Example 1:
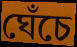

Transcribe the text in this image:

ঘেঁচে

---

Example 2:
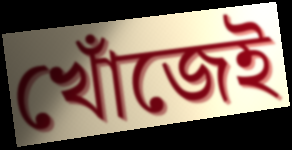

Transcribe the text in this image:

খোঁজেই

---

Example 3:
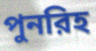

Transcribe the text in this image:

পুনরিহ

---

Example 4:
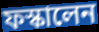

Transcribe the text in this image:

ফস্কালেন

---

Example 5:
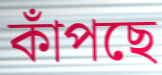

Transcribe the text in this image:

কাঁপছে